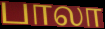
பாலா